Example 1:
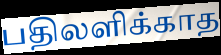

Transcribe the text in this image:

பதிலளிக்காத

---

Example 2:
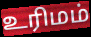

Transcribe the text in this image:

உரிமம்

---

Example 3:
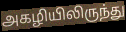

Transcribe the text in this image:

அகழியிலிருந்து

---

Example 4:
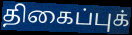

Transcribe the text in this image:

திகைப்புக்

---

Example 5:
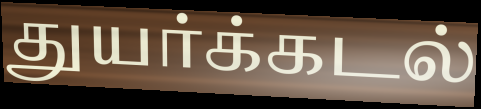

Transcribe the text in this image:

துயர்க்கடல்